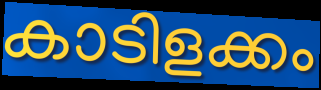
കാടിളക്കം